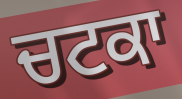
ਚਟਕਾ